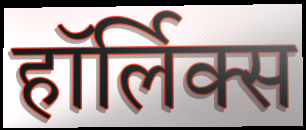
हॉर्लिक्स